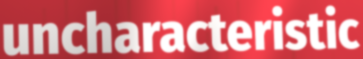
uncharacteristic